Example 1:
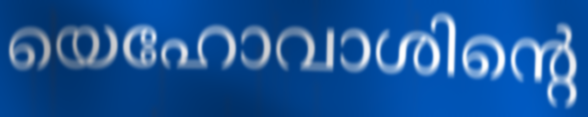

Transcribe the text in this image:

യെഹോവാശിന്റെ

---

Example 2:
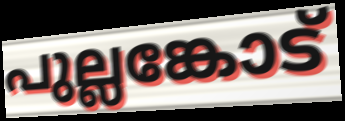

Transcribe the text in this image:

പുല്ലങ്കോട്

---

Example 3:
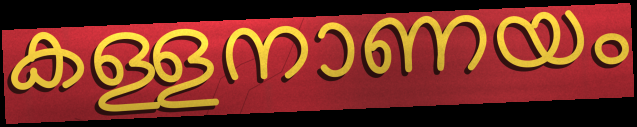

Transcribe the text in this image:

കള്ളനാണയം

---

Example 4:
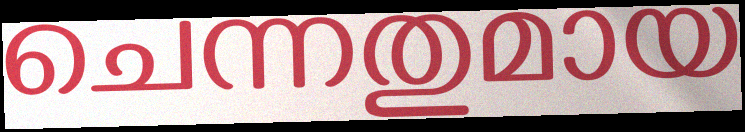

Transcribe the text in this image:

ചെന്നതുമായ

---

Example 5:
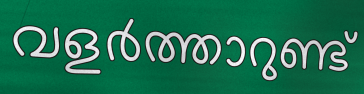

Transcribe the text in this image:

വളർത്താറുണ്ട്